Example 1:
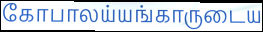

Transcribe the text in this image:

கோபாலய்யங்காருடைய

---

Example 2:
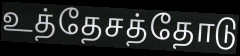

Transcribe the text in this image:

உத்தேசத்தோடு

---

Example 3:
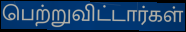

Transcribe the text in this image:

பெற்றுவிட்டார்கள்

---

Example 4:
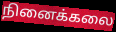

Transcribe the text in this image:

நினைக்கலை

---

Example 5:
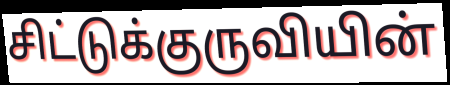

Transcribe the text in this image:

சிட்டுக்குருவியின்